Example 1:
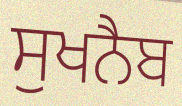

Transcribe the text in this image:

ਸੁਖਨੈਬ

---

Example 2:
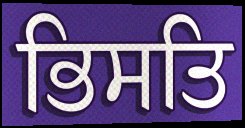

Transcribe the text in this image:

ਭਿਸਤਿ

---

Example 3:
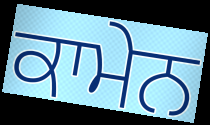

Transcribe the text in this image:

ਕਾਮੇਨ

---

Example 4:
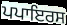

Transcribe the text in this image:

ਪਪਾਇਰਸ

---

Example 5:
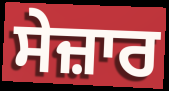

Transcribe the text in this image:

ਸੇਜ਼ਾਰ